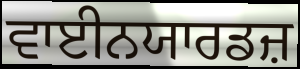
ਵਾਈਨਯਾਰਡਜ਼